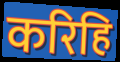
करिहि